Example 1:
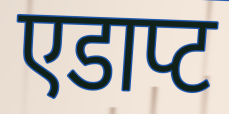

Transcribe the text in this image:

एडाप्ट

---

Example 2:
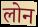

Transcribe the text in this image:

लोन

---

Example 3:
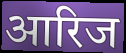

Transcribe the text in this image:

आरिज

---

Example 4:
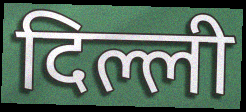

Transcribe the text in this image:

दिल्ली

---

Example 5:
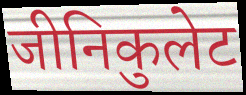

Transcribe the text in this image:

जीनिकुलेट